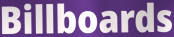
Billboards